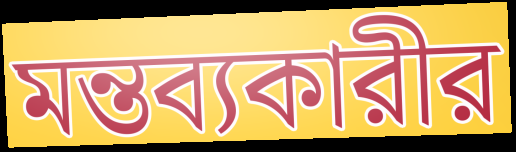
মন্তব্যকারীর